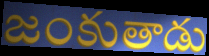
జంకుతాడు